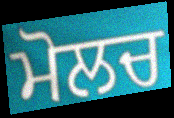
ਮੋਲਚ